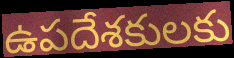
ఉపదేశకులకు